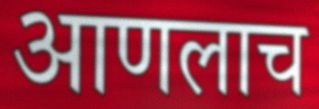
आणलाच